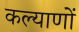
कल्याणों